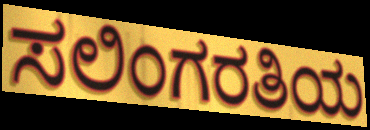
ಸಲಿಂಗರತಿಯ